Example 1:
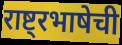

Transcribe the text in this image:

राष्ट्रभाषेची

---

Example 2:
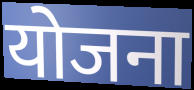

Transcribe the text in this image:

योजना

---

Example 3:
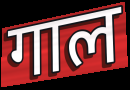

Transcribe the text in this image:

गाल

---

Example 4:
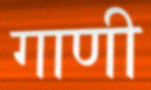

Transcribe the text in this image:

गाणी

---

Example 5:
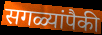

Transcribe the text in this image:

सगळ्यांपैकी